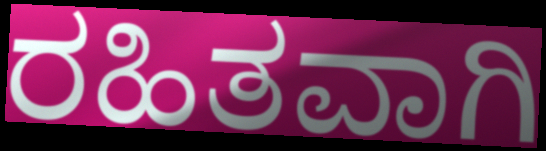
ರಹಿತವಾಗಿ